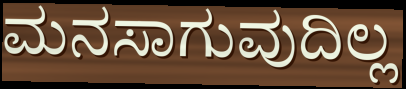
ಮನಸಾಗುವುದಿಲ್ಲ